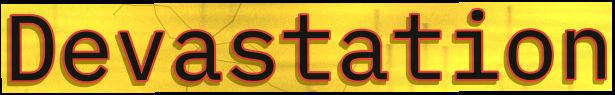
Devastation